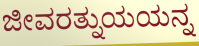
ಜೀವರತ್ನುಯಯನ್ನ